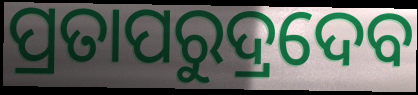
ପ୍ରତାପରୁଦ୍ରଦେବ